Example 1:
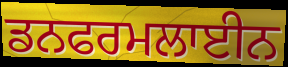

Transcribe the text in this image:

ਡਨਫਰਮਲਾਈਨ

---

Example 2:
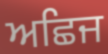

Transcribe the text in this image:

ਅਛਿਜ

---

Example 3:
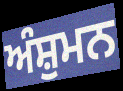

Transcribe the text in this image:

ਅੰਸ਼ੁਮਨ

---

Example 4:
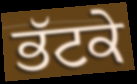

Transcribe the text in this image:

ਭੱਟਕੇ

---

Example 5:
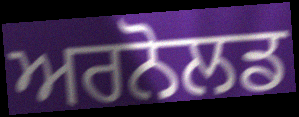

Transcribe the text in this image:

ਅਰਨੋਲਡ